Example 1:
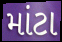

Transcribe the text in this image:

માંટા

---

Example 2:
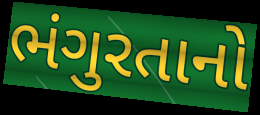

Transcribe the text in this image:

ભંગુરતાનો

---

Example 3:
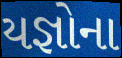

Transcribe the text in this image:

યજ્ઞોના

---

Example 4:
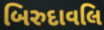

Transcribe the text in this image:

બિરુદાવલિ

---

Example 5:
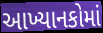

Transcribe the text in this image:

આખ્યાનકોમાં